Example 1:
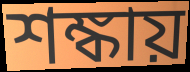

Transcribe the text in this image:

শঙ্কায়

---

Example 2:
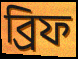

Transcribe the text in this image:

ব্রিফ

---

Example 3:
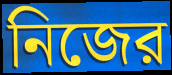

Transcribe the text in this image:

নিজের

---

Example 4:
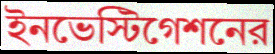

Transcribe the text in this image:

ইনভেস্টিগেশনের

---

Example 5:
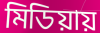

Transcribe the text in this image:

মিডিয়ায়